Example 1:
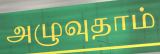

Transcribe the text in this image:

அழுவுதாம்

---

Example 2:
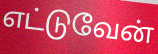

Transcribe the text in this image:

எட்டுவேன்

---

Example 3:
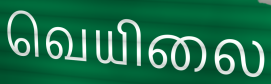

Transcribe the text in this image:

வெயிலை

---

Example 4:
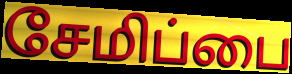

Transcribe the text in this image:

சேமிப்பை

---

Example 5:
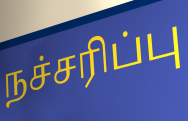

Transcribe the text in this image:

நச்சரிப்பு